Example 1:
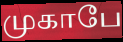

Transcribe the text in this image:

முகாபே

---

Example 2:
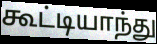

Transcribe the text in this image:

கூட்டியாந்து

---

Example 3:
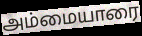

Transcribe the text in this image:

அம்மையாரை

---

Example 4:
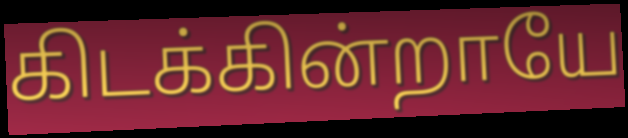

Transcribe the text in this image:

கிடக்கின்றாயே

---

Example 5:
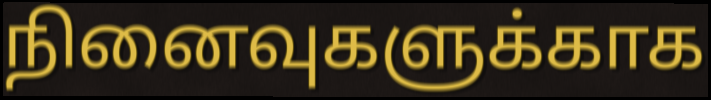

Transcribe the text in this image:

நினைவுகளுக்காக